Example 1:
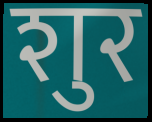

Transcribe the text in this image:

शुर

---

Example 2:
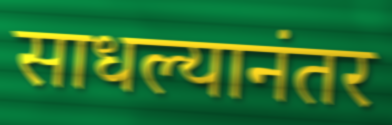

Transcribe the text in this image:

साधल्यानंतर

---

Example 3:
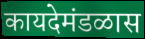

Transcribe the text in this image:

कायदेमंडळास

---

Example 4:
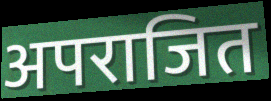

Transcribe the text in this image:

अपराजित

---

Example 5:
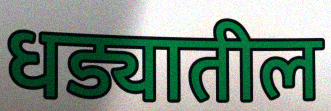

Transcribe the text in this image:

धड्यातील